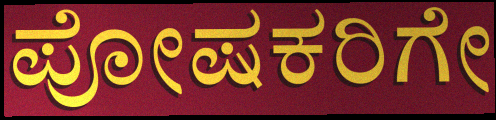
ಪೋಷಕರಿಗೇ